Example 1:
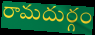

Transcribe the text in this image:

రామదుర్గం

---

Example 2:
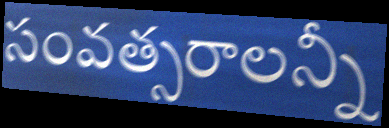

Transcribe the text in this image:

సంవత్సరాలన్నీ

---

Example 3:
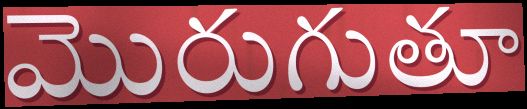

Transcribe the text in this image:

మొరుగుతూ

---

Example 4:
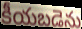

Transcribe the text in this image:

కీయబడెను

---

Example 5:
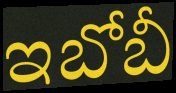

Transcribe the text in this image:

ఇబోబీ